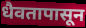
धैवतापासून